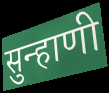
सुन्हाणी